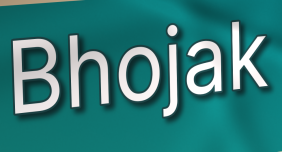
Bhojak